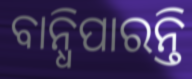
ବାନ୍ଧିପାରନ୍ତି